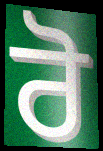
ਰੋ